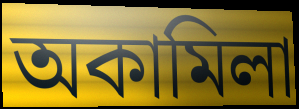
অকামিলা